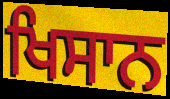
ਖਿਸਾਨ